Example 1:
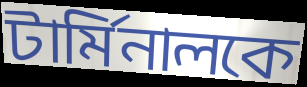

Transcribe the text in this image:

টার্মিনালকে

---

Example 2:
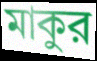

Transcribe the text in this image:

মাকুর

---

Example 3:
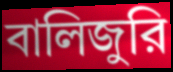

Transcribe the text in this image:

বালিজুরি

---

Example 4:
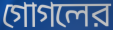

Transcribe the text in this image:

গোগলের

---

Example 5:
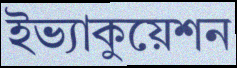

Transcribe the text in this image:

ইভ্যাকুয়েশন